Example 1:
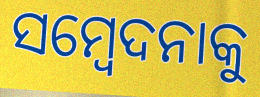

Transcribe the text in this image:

ସମ୍ବେଦନାକୁ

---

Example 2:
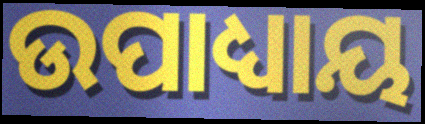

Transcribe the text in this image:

ଉପାଧ୍ୟାୟ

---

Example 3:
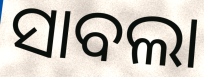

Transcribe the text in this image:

ସାବଲା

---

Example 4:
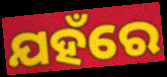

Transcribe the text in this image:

ଯହଁରେ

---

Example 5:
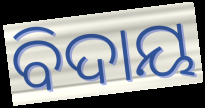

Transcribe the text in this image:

ବିଦାୟ